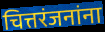
चित्तरंजनांना